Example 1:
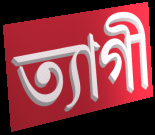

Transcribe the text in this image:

ত্যাগী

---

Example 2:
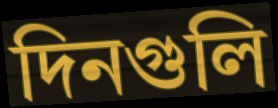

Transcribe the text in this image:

দিনগুলি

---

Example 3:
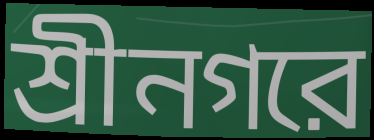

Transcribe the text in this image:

শ্রীনগরে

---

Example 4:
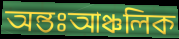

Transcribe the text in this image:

অন্তঃআঞ্চলিক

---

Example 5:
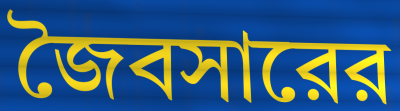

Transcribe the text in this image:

জৈবসারের